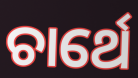
ଚାର୍ଥେ